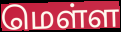
மெள்ள